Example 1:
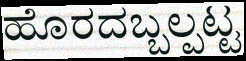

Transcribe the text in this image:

ಹೊರದಬ್ಬಲ್ಪಟ್ಟ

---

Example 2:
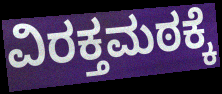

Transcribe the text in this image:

ವಿರಕ್ತಮಠಕ್ಕೆ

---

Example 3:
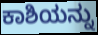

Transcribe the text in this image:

ಕಾಶಿಯನ್ನು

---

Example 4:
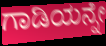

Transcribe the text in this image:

ಗಾಡಿಯನ್ನೇ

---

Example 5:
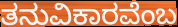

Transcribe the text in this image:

ತನುವಿಕಾರವೆಂಬ